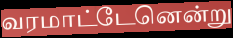
வரமாட்டேனென்று